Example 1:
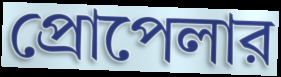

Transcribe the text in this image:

প্রোপেলার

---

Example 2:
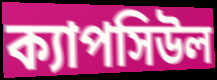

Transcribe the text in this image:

ক্যাপসিউল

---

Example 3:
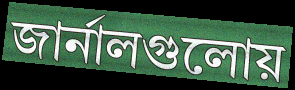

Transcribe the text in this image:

জার্নালগুলোয়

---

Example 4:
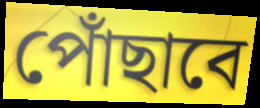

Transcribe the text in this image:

পোঁছাবে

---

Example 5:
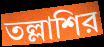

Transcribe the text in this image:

তল্লাশির